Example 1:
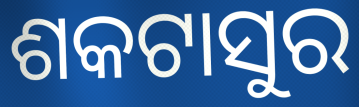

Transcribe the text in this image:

ଶକଟାସୁର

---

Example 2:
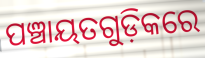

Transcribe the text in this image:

ପଞ୍ଚାୟତଗୁଡ଼ିକରେ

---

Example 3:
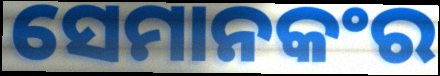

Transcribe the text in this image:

ସେମାନକଂର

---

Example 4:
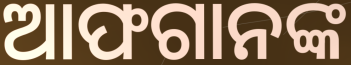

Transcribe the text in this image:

ଆଫଗାନଙ୍କ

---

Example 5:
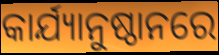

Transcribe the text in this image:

କାର୍ଯ୍ୟାନୁଷ୍ଠାନରେ